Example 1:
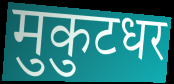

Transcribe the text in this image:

मुकुटधर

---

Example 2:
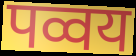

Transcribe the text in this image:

पव्वय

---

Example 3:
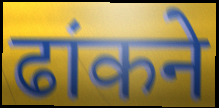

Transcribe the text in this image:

ढांकने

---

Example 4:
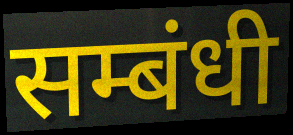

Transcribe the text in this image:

सम्बंधी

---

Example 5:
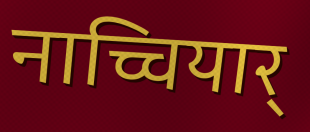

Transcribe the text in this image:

नाच्चियार्